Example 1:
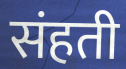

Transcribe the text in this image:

संहती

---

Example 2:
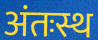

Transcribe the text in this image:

अंतःस्थ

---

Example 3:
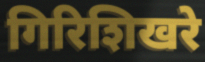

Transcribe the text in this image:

गिरिशिखरे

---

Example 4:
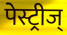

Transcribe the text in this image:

पेस्ट्रीज्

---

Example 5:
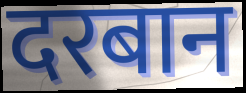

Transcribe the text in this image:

दरबान